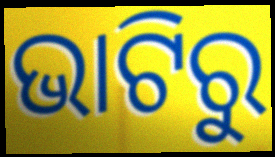
ଭାଟିରୁ